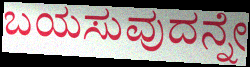
ಬಯಸುವುದನ್ನೇ